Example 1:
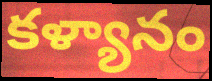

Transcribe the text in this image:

కళ్యానం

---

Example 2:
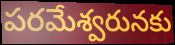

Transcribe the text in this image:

పరమేశ్వరునకు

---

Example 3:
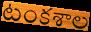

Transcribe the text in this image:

టంకశాల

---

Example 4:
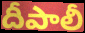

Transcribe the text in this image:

దీపాలీ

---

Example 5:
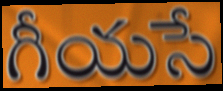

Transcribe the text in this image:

గీయసే